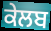
ਕੇਲਬ